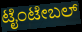
ಟೈಂಟೇಬಲ್